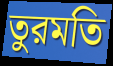
তুরমতি